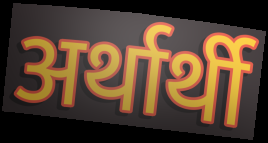
अर्थार्थी